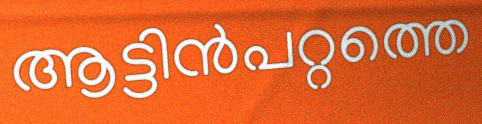
ആട്ടിൻപറ്റത്തെ